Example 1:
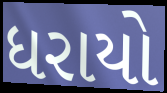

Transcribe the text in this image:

ધરાયો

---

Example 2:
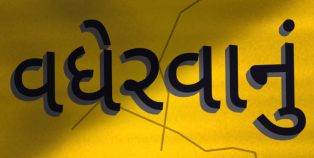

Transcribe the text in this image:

વધેરવાનું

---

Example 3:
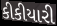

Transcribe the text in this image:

કીકીયારી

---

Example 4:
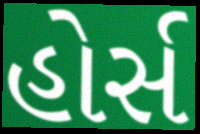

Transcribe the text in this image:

હોર્સ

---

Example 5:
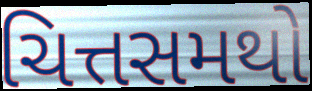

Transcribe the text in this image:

ચિત્તસમથો